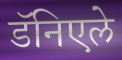
डॅनिएले